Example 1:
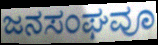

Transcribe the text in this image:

ಜನಸಂಘವೂ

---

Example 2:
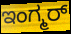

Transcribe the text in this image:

ಇಂಗ್ಮರ್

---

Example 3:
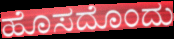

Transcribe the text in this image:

ಹೊಸದೊಂದು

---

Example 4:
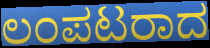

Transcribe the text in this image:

ಲಂಪಟರಾದ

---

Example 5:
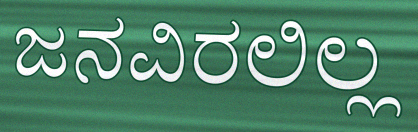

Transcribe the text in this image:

ಜನವಿರಲಿಲ್ಲ